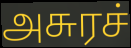
அசுரச்